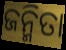
ଜନ୍ମିତା